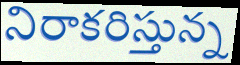
నిరాకరిస్తున్న